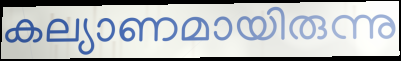
കല്യാണമായിരുന്നു